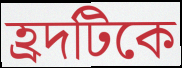
হ্রদটিকে